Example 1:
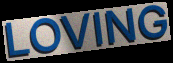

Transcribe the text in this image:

LOVING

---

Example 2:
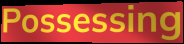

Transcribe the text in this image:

Possessing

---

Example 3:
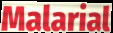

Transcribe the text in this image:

Malarial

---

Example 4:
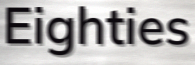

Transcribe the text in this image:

Eighties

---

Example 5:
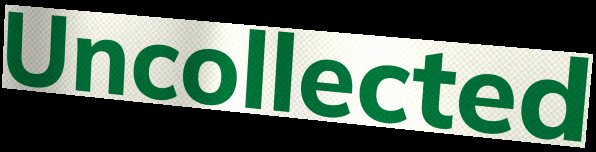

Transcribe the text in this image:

Uncollected